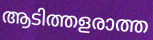
ആടിത്തളരാത്ത